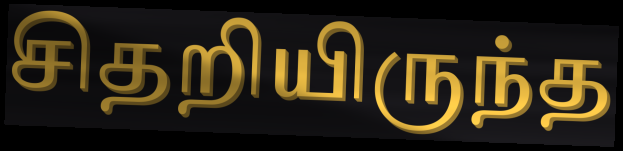
சிதறியிருந்த